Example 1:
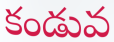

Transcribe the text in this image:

కండువ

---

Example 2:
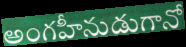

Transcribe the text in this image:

అంగహీనుడుగానో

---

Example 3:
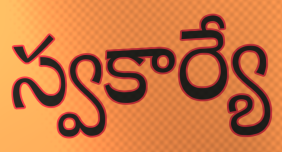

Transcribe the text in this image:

స్వకార్యే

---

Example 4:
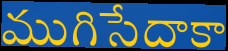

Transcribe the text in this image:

ముగిసేదాకా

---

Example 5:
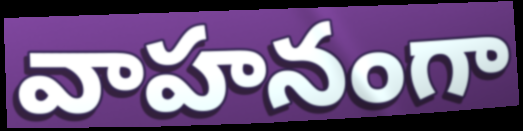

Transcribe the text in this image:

వాహనంగా